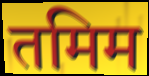
तमिम